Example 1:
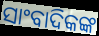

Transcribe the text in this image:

ସାଂବାଦିକଙ୍କ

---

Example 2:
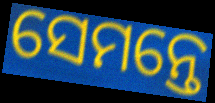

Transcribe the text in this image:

ସେମନ୍ତେ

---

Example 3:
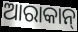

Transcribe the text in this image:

ଆରାକାନ୍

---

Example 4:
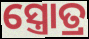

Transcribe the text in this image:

ସ୍ତ୍ରୋତ୍ର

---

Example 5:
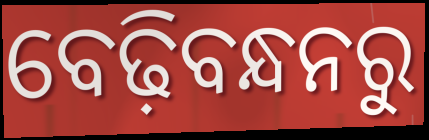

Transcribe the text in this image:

ବେଢ଼ିବନ୍ଧନରୁ